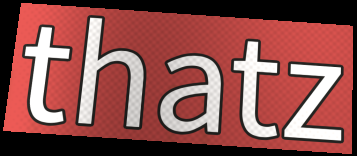
thatz